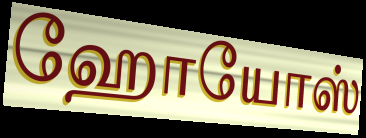
ஹோயோஸ்